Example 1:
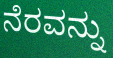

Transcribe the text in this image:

ನೆರವನ್ನು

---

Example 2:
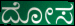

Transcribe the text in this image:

ದೋಸ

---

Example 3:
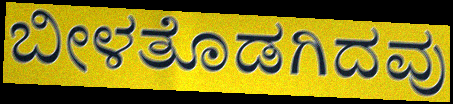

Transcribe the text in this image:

ಬೀಳತೊಡಗಿದವು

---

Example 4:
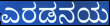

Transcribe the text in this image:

ಎರಡನಯ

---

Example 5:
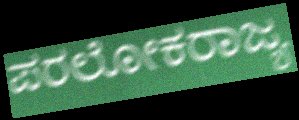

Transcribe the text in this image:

ಪರಲೋಕರಾಜ್ಯ